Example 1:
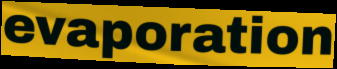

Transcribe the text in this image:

evaporation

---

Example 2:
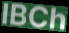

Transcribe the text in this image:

IBCh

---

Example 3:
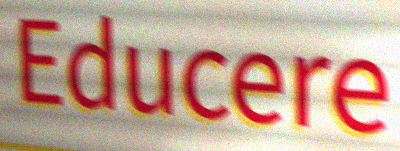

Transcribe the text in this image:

Educere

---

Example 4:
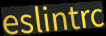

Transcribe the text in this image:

eslintrc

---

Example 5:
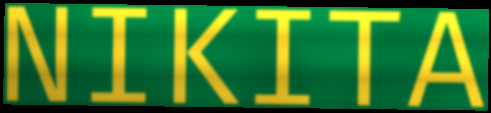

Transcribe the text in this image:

NIKITA